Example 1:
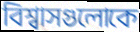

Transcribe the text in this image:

বিশ্বাসগুলোকে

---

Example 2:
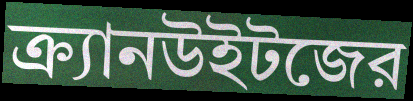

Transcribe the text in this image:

ক্র্যানউইটজের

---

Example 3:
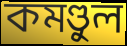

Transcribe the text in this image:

কমণ্ডুল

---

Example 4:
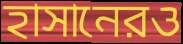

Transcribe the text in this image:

হাসানেরও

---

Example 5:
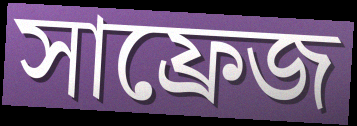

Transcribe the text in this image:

সাফ্রেজ